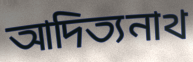
আদিত্যনাথ